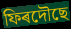
ফিৰদৌছে